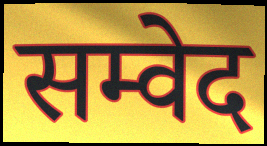
सम्वेद